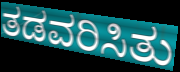
ತಡವರಿಸಿತು